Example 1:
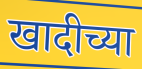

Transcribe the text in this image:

खादीच्या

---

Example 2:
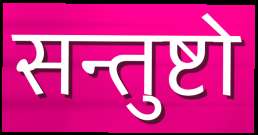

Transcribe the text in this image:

सन्तुष्टो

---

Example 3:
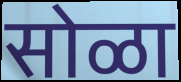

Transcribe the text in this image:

सोळा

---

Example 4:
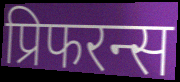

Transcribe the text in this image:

प्रिफरन्स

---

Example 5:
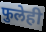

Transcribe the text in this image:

फुलेही